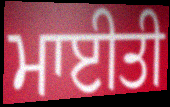
ਮਾਈਤੀ